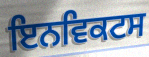
ਇਨਵਿਕਟਸ